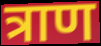
त्राण